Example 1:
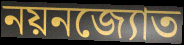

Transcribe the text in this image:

নয়নজ্যোত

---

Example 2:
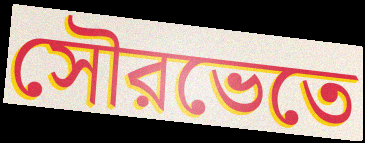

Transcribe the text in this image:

সৌরভেতে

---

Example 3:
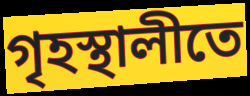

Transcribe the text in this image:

গৃহস্থালীতে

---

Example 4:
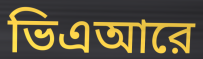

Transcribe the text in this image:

ভিএআরে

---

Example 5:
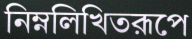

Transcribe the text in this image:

নিম্নলিখিতরূপে